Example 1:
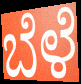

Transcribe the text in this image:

ಬೆಳೆ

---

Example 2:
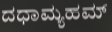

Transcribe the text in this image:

ದಧಾಮ್ಯಹಮ್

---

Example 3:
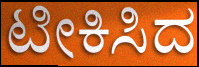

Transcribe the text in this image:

ಟೀಕಿಸಿದ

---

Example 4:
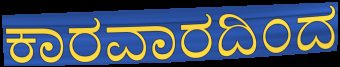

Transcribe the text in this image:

ಕಾರವಾರದಿಂದ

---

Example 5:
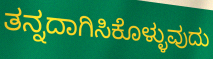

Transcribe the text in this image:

ತನ್ನದಾಗಿಸಿಕೊಳ್ಳುವುದು